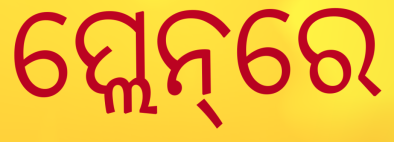
ପ୍ଲେନ୍‌ରେ